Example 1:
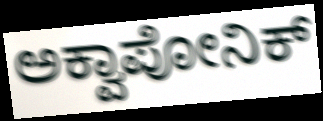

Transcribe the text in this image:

ಅಕ್ವಾಪೋನಿಕ್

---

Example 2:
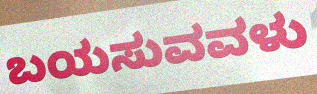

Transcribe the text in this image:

ಬಯಸುವವಳು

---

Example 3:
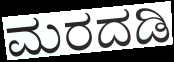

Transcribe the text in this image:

ಮರದಡಿ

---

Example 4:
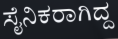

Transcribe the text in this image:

ಸೈನಿಕರಾಗಿದ್ದ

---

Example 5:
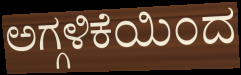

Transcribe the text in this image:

ಅಗ್ಗಳಿಕೆಯಿಂದ